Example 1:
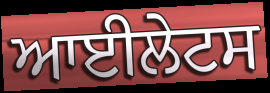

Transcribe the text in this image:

ਆਈਲੇਟਸ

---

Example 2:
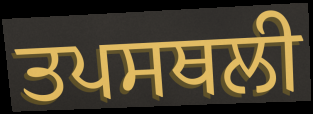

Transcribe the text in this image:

ਤਪਸਥਲੀ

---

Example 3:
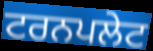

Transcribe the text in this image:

ਟਰਨਪਲੇਟ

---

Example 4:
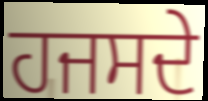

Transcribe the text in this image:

ਹਜਸਦੇ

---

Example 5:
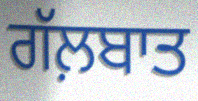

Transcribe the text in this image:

ਗੱਲ਼ਬਾਤ